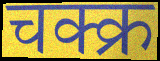
चक्क्र